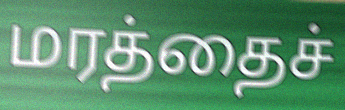
மரத்தைச்